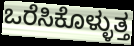
ಒರೆಸಿಕೊಳ್ಳುತ್ತ